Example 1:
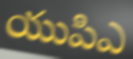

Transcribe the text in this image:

యుపిఎ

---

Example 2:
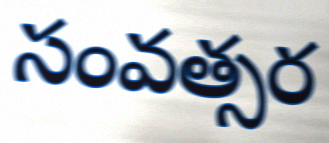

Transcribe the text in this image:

సంవత్సర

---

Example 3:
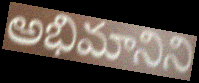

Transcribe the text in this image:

అభిమానిని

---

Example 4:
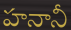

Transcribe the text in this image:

హనానీ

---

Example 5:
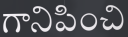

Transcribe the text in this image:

గానిపించి